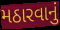
મઠારવાનું